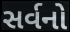
સર્વનો